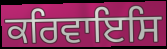
ਕਰਿਵਾਇਸਿ